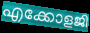
എക്കോളജി